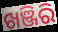
ଖଞ୍ଜିରି